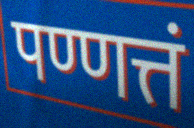
पण्णत्तं